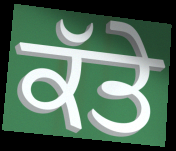
ਕੱਤੇ